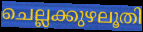
ചെല്ലക്കുഴലൂതി